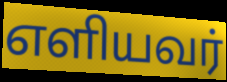
எளியவர்